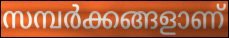
സമ്പർക്കങ്ങളാണ്